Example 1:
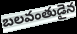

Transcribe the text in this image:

బలవంతుడైన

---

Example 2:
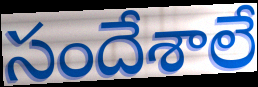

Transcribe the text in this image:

సందేశాలే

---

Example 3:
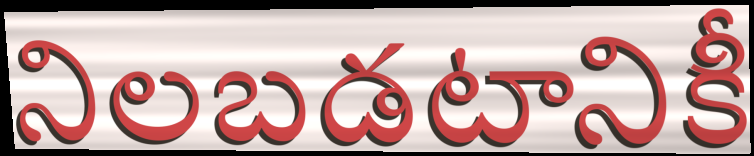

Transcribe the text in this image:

నిలబడటానికీ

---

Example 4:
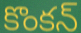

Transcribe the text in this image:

కొంకన్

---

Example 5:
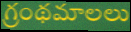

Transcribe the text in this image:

గ్రంథమాలలు